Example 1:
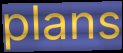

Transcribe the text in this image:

plans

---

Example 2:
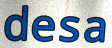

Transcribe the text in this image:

desa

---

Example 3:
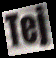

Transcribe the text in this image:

Tej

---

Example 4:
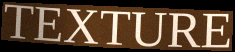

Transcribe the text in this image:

TEXTURE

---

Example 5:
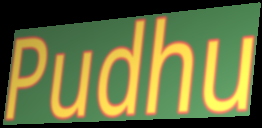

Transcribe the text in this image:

Pudhu